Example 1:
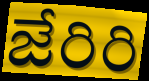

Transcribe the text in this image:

జేరిరి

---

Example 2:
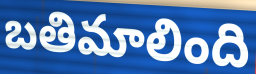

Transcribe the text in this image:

బతిమాలింది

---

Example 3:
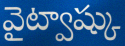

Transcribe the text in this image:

వైట్వాష్కు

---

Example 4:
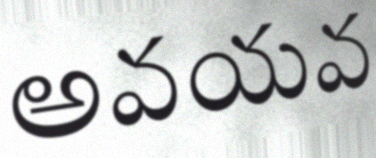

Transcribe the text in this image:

అవయవ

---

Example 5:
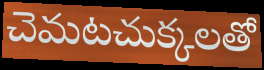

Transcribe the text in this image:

చెమటచుక్కలతో